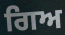
ਗਿਅ